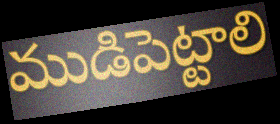
ముడిపెట్టాలి